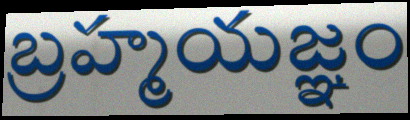
బ్రహ్మయజ్ఞం